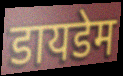
डायडेम